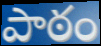
పాఠం